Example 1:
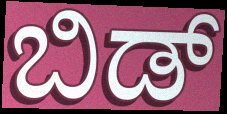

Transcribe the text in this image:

ಬಿಡ್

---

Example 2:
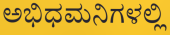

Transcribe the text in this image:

ಅಭಿಧಮನಿಗಳಲ್ಲಿ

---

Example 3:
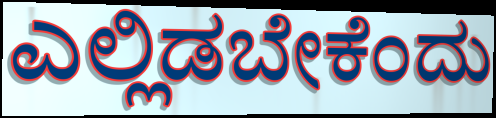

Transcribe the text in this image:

ಎಲ್ಲಿಡಬೇಕೆಂದು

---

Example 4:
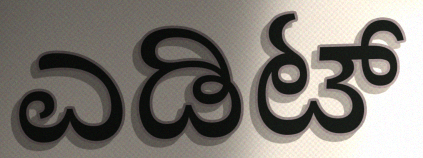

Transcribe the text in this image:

ಎಡಿಟ್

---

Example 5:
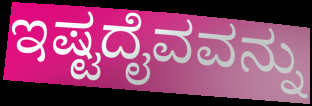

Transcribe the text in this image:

ಇಷ್ಟದೈವವನ್ನು